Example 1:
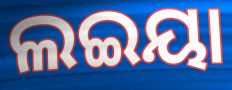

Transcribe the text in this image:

ଲଇୟା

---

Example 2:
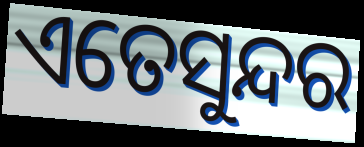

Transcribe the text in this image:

ଏତେସୁନ୍ଦର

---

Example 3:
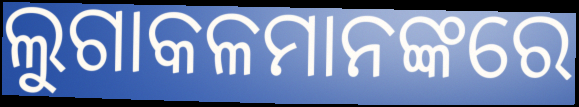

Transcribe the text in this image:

ଲୁଗାକଳମାନଙ୍କରେ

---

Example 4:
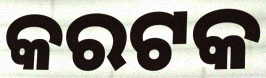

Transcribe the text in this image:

କରଟକ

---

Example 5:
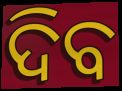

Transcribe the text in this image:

ଦିବ